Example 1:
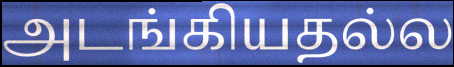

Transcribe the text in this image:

அடங்கியதல்ல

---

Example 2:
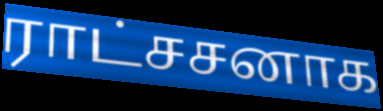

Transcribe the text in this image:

ராட்சசனாக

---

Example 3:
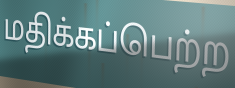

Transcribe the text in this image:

மதிக்கப்பெற்ற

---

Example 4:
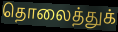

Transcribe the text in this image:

தொலைத்துக்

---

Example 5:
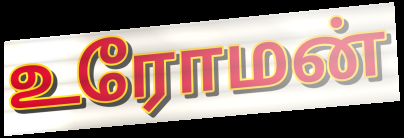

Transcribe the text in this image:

உரோமன்